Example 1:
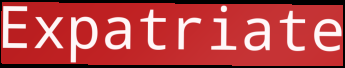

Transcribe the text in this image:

Expatriate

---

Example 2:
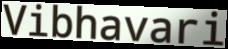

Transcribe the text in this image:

Vibhavari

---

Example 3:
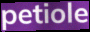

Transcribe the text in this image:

petiole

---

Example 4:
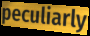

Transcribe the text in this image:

peculiarly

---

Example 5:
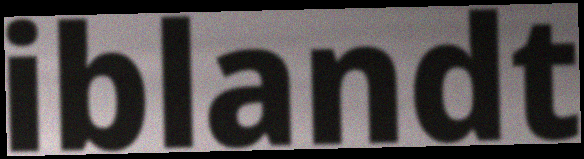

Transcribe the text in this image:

iblandt